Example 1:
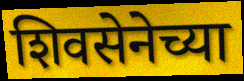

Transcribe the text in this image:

शिवसेनेच्या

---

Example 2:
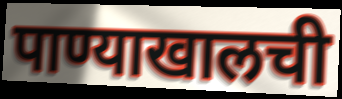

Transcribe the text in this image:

पाण्याखालची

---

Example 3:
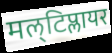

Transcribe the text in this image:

मल्टिप्लायर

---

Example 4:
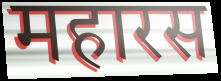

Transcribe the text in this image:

महारस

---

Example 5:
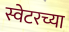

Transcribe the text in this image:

स्वेटरच्या